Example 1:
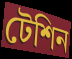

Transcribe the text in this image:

টেশিন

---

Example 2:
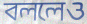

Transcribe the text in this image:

বললেও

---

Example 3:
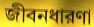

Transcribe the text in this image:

জীবনধারণা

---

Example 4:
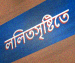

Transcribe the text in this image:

ললিতসৃষ্টিতে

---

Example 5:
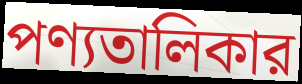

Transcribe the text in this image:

পণ্যতালিকার